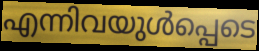
എന്നിവയുൾപ്പെടെ